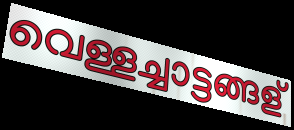
വെള്ളച്ചാട്ടങ്ങള്